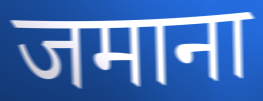
जमाना